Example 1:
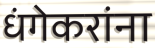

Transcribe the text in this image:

धंगेकरांना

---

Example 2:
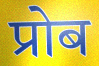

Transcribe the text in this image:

प्रोब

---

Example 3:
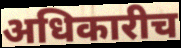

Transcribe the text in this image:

अधिकारीच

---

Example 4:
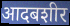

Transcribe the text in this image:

आदबशीर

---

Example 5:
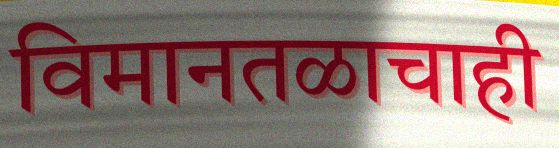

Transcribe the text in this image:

विमानतळाचाही